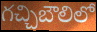
గచ్చిబౌలిలో